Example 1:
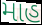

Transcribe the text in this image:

માહ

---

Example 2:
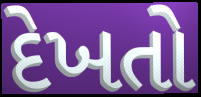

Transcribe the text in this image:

દેખતો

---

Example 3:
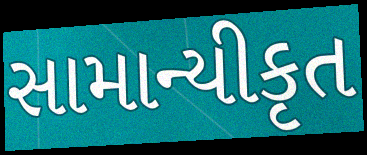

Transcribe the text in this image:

સામાન્યીકૃત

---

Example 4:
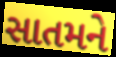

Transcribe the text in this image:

સાતમને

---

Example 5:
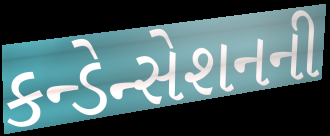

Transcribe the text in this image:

કન્ડેન્સેશનની